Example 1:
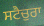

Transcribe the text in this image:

ਸਟੈਚੁਰਾ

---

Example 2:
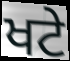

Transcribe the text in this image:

ਖਟੇ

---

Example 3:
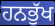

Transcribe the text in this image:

ਹਨਭੁੱਖ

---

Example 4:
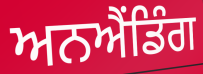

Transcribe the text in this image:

ਅਨਐਂਡਿੰਗ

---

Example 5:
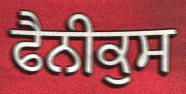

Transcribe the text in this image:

ਫੈਨੀਕੁਸ